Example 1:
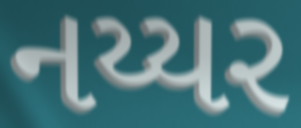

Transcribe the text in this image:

નય્યર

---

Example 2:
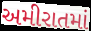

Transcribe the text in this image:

અમીરાતમાં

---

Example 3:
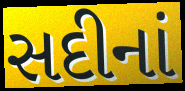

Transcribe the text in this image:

સદીનાં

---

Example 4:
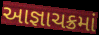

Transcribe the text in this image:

આજ્ઞાચક્રમાં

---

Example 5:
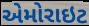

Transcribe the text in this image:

એમોરાઇટ